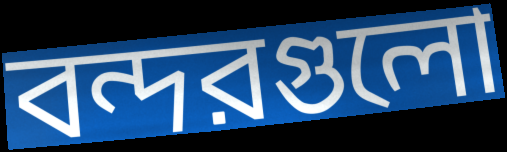
বন্দরগুলো